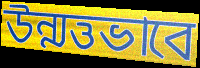
উন্মত্তভাবে